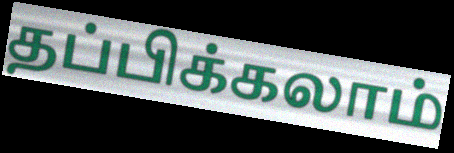
தப்பிக்கலாம்